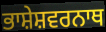
ਭਾਸ਼ੇਸ਼ਵਰਨਾਥ